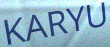
KARYU